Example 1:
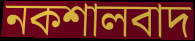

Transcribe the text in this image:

নকশালবাদ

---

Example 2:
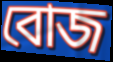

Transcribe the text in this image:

বোজ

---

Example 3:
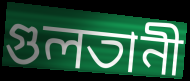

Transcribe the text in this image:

গুলতানী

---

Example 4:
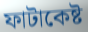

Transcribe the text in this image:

ফাটাকেষ্ট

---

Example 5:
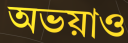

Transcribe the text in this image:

অভয়াও